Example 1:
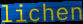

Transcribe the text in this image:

lichen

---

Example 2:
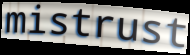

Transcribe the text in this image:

mistrust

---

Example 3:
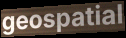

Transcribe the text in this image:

geospatial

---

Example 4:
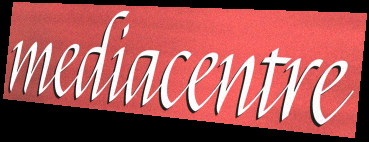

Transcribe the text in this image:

mediacentre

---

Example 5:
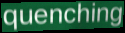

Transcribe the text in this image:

quenching